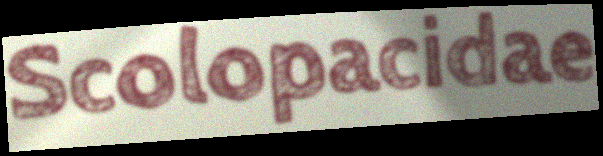
Scolopacidae